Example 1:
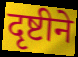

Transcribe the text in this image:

दृष्टीने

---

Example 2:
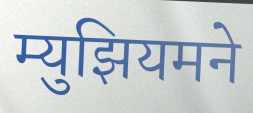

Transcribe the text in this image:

म्युझियमने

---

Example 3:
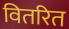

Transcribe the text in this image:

वितरित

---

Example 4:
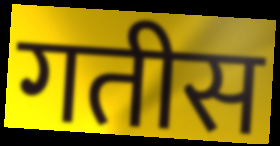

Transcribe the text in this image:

गतीस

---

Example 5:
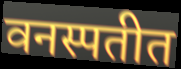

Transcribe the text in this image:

वनस्पतीत